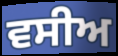
ਵਸੀਅ